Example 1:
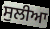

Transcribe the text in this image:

ਸੁਲੀਆ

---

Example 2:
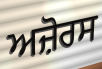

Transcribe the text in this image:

ਅਜ਼ੋਰਸ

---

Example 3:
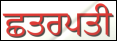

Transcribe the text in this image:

ਛਤਰਪਤੀ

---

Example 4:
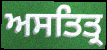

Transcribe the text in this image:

ਅਸਤਿਤ੍ਰ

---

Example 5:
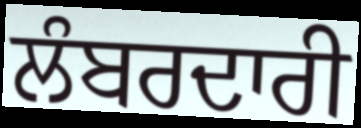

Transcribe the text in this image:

ਲੰਬਰਦਾਰੀ